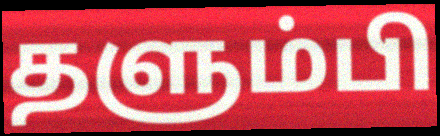
தளும்பி